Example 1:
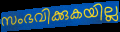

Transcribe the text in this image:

സംഭവിക്കുകയില്ല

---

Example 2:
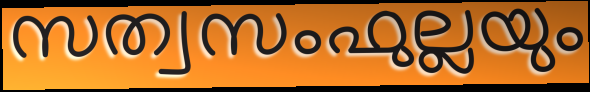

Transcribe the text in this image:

സത്വസംഫുല്ലയും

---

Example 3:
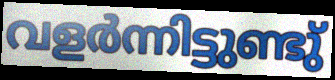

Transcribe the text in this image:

വളർന്നിട്ടുണ്ടു്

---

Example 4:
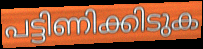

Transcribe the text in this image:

പട്ടിണിക്കിടുക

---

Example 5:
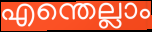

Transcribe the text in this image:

എന്തെല്ലാം